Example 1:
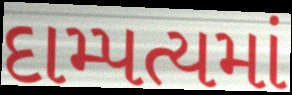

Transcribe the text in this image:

દામ્પત્યમાં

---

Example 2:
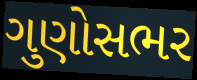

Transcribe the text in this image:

ગુણોસભર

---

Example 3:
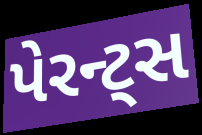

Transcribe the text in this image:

પેરન્ટ્સ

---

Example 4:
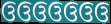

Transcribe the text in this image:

ઉઉઉઉઉઉઉ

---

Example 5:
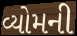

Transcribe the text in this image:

વ્યોમની